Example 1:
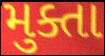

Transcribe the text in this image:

મુક્તા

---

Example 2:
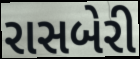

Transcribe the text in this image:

રાસબેરી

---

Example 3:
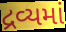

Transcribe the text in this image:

દ્રવ્યમાં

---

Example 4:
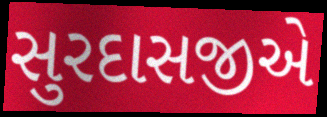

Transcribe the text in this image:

સુરદાસજીએ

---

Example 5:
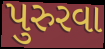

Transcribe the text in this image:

પુરુરવા